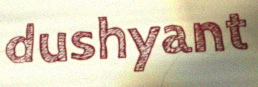
dushyant